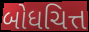
બોધચિત્ત